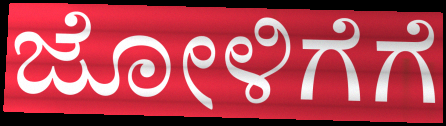
ಜೋಳಿಗೆಗೆ